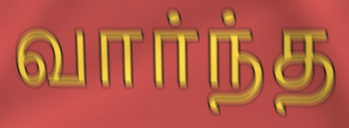
வார்ந்த